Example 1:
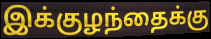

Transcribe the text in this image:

இக்குழந்தைக்கு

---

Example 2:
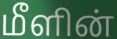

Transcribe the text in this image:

மீளின்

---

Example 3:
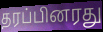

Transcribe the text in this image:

தரப்பினரது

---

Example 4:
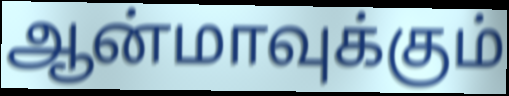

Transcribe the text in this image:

ஆன்மாவுக்கும்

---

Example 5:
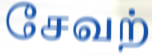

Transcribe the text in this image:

சேவற்